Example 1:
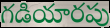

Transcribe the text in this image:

గడియారపు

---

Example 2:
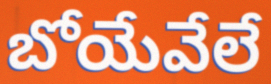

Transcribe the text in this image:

బోయేవేలే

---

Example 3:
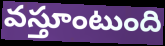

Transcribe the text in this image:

వస్తూంటుంది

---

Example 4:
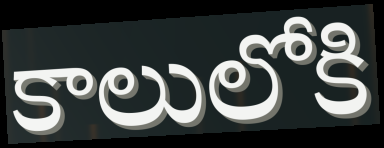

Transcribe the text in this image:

కాలులోకి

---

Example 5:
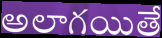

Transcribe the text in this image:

అలాగయితే